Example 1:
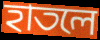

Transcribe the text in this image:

হাতলে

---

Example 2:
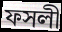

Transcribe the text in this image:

ফসলী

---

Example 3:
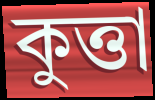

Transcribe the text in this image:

কুত্তা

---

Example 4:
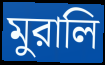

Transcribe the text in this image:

মুরালি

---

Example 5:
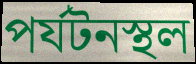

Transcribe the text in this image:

পর্যটনস্থল